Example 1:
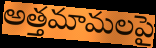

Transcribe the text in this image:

అత్తమామలపై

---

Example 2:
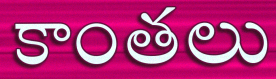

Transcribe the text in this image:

కాంతలు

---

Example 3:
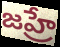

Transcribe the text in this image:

జహ్రే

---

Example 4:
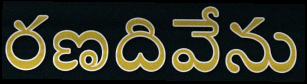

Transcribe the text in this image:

రణదివేను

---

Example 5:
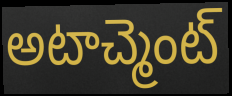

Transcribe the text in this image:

అటాచ్మెంట్